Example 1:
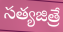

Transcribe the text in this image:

సత్యజిత్రే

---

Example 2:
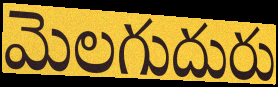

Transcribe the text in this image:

మెలగుదురు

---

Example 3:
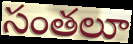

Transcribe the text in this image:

సంతలూ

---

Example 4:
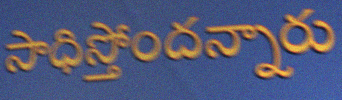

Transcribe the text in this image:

సాధిస్తోందన్నారు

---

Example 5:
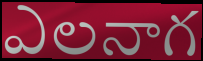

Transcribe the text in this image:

ఎలనాగ